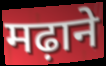
मढ़ाने